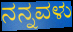
ನನ್ನವಳು